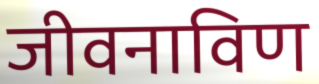
जीवनाविण